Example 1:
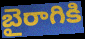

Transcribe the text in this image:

బైరాగికి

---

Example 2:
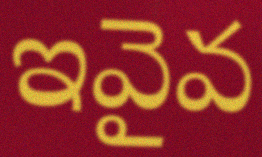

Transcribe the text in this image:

ఇవైవ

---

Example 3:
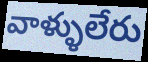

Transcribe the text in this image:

వాళ్ళులేరు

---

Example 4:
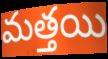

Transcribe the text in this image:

మత్తయి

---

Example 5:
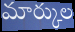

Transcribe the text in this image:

మార్కుల